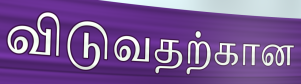
விடுவதற்கான